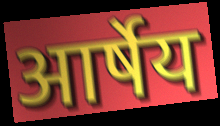
आर्षेय